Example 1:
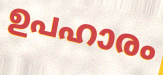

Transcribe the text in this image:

ഉപഹാരം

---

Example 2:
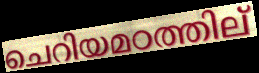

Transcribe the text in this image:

ചെറിയമഠത്തില്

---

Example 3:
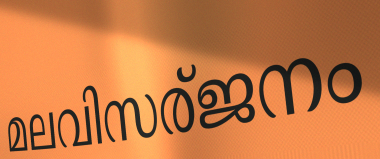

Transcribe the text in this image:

മലവിസര്ജനം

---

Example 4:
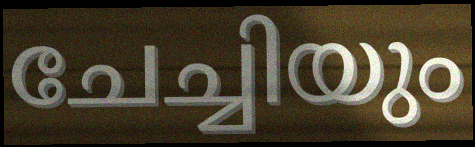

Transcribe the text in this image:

ചേച്ചിയും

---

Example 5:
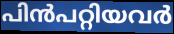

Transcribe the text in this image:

പിൻപറ്റിയവർ